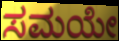
ಸಮಯೇ